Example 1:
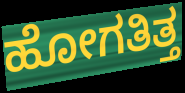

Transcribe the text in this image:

ಹೋಗತಿತ್ತ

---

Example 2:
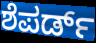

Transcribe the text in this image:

ಶೆಪರ್ಡ್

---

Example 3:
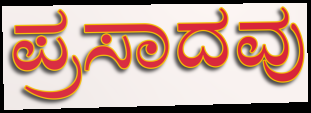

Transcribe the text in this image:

ಪ್ರಸಾದವು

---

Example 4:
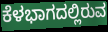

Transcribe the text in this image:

ಕೆಳಭಾಗದಲ್ಲಿರುವ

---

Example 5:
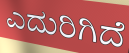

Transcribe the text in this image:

ಎದುರಿಗಿದೆ